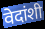
वेदांशी